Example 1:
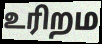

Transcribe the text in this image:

உரிறம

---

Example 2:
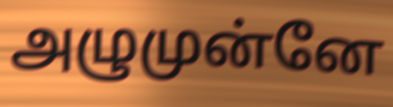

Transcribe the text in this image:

அழுமுன்னே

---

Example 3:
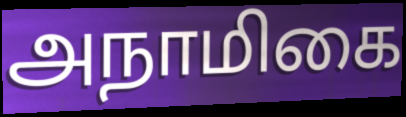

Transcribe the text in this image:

அநாமிகை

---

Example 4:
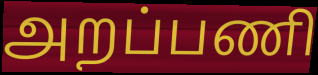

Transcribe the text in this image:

அறப்பணி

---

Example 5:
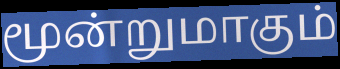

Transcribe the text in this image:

மூன்றுமாகும்